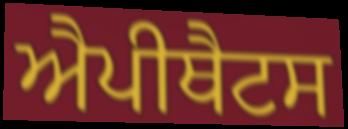
ਐਪੀਥੈਟਸ